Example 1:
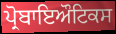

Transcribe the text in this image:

ਪ੍ਰੋਬਾਇਔਟਿਕਸ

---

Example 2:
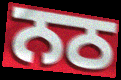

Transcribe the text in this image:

ਨਠ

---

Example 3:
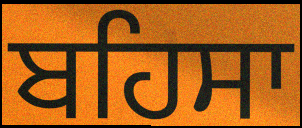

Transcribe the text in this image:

ਬਹਿਸਾ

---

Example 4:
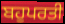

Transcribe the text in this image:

ਬਹੁਪਰਤੀ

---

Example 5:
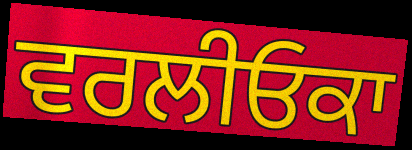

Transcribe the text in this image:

ਵਰਲੀਓਕਾ